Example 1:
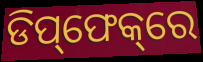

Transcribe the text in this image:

ଡିପ୍‌ଫେକ୍‌ରେ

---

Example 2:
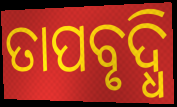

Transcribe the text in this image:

ତାପବୃଦ୍ଧି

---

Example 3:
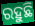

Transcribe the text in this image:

ରହୁଛି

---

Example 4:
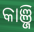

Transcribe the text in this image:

କାଞ୍ଜି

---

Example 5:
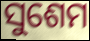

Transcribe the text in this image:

ସୁଶେମ